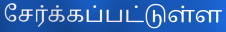
சேர்க்கப்பட்டுள்ள